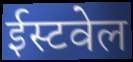
ईस्टवेल